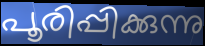
പൂരിപ്പിക്കുന്നു